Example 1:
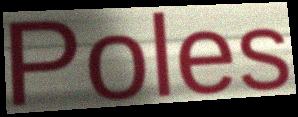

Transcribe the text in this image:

Poles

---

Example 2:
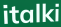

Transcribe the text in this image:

italki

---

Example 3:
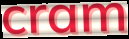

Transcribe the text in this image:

cram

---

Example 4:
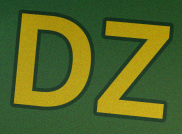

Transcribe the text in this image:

DZ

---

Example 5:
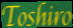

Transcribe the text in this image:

Toshiro